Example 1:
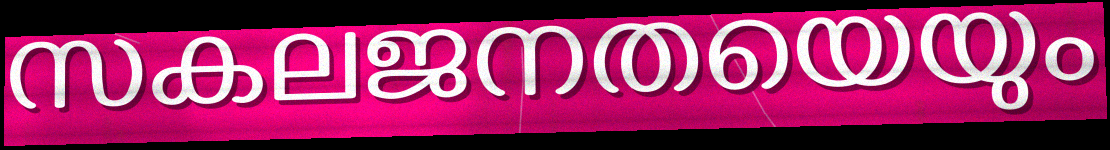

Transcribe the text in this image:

സകലജനതയെയും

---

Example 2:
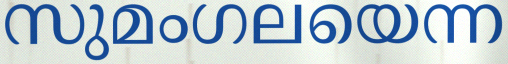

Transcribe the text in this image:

സുമംഗലയെന്ന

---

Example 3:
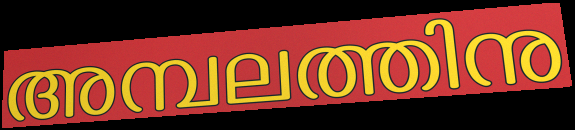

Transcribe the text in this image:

അമ്പലത്തിനു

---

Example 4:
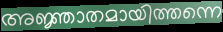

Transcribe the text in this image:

അജ്ഞാതമായിത്തന്നെ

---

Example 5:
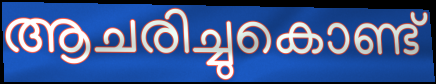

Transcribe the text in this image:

ആചരിച്ചുകൊണ്ട്